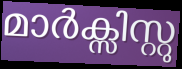
മാർക്സിസ്റ്റു